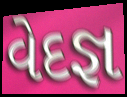
વેદજ્ઞ